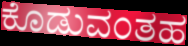
ಕೊಡುವಂತಹ